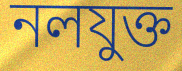
নলযুক্ত